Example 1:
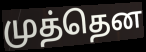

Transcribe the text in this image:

முத்தென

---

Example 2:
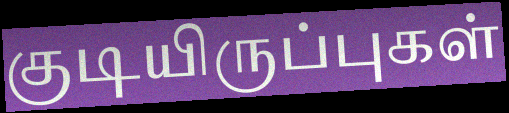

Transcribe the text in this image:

குடியிருப்புகள்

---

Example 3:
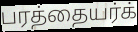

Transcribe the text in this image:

பரத்தையர்க்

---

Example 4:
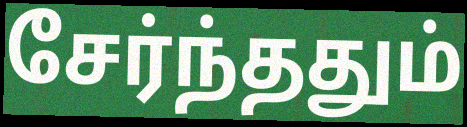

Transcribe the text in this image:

சேர்ந்ததும்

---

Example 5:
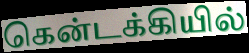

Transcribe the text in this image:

கென்டக்கியில்